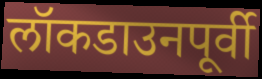
लॉकडाउनपूर्वी